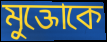
মুক্তোকে